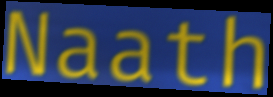
Naath